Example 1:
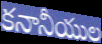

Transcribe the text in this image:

కనానీయుల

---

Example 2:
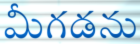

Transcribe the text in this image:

మీగడను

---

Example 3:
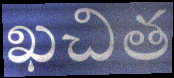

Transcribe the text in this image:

ఖచిత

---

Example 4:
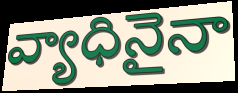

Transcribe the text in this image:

వ్యాధినైనా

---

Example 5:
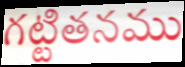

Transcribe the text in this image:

గట్టితనము